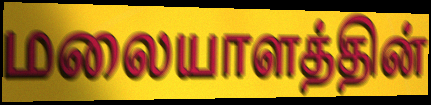
மலையாளத்தின்